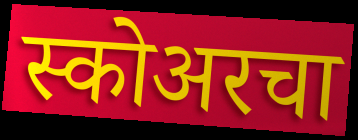
स्कोअरचा